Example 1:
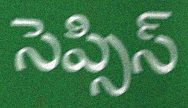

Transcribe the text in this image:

సెప్సిస్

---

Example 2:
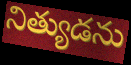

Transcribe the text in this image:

నిత్యుడను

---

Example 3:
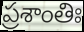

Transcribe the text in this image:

ప్రశాంతిః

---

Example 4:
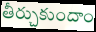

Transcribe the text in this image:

తీర్చుకుందాం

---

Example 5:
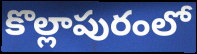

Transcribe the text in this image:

కొల్లాపురంలో